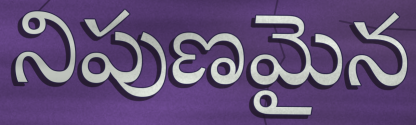
నిపుణమైన